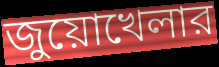
জুয়োখেলার